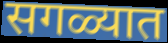
सगळ्यात